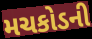
મચકોડની